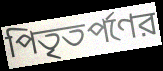
পিতৃতর্পণের